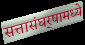
सत्तासंघर्षामध्ये